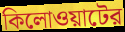
কিলোওয়াটের